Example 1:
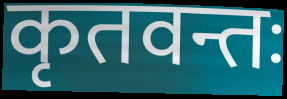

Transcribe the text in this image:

कृतवन्तः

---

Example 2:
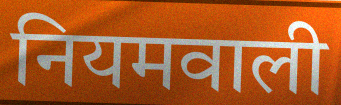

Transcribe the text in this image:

नियमवाली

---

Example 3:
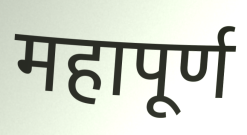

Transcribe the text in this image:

महापूर्ण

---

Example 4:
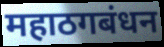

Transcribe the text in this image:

महाठगबंधन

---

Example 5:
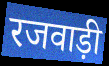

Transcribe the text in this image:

रजवाड़ी